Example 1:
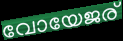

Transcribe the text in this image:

വോയേജര്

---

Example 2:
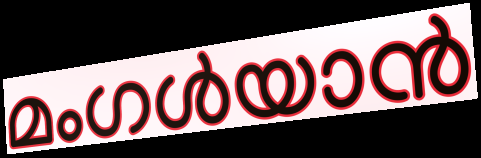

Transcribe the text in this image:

മംഗൾയാൻ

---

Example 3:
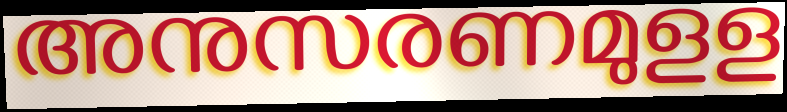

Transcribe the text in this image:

അനുസരണമുളള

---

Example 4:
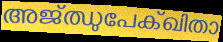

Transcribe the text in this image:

അജ്ഝുപേക്ഖിതാ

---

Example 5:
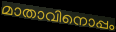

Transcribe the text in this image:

മാതാവിനൊപ്പം